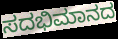
ಸದಭಿಮಾನದ